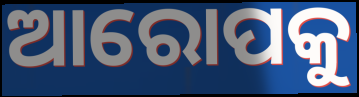
ଆରୋପକୁ